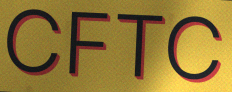
CFTC